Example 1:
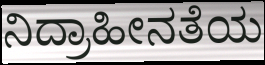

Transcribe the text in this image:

ನಿದ್ರಾಹೀನತೆಯ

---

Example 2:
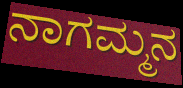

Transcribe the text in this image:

ನಾಗಮ್ಮನ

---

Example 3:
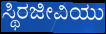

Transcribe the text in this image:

ಸ್ಥಿರಜೀವಿಯು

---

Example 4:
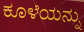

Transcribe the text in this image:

ಕೂಳೆಯನ್ನು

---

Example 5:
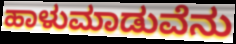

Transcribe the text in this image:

ಹಾಳುಮಾಡುವೆನು